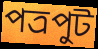
পত্রপুট